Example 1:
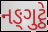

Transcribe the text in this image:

નઙ્ગુટ્ઠે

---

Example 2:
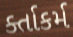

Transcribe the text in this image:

ર્ક્તાકર્મ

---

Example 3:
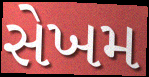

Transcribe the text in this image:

સેખમ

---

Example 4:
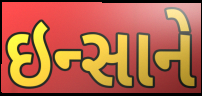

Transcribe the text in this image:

ઇન્સાને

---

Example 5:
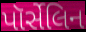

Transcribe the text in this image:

પૉર્સેલિન